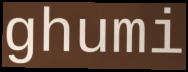
ghumi